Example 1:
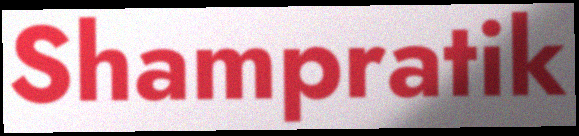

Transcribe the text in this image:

Shampratik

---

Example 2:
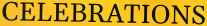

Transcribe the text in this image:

CELEBRATIONS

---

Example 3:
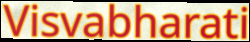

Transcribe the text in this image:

Visvabharati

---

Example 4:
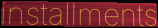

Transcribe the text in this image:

installments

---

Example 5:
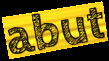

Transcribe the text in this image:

abut